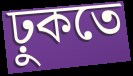
ঢ়ুকতে